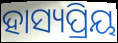
ହାସ୍ୟପ୍ରିୟ